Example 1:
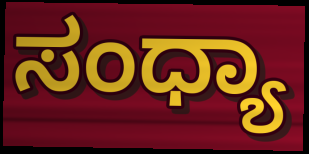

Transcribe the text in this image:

ಸಂಧ್ಯಾ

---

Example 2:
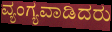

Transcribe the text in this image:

ವ್ಯಂಗ್ಯವಾಡಿದರು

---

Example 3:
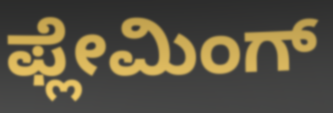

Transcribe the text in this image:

ಫ್ಲೇಮಿಂಗ್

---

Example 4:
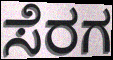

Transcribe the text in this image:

ಸೆರಗ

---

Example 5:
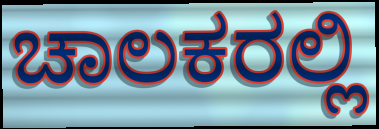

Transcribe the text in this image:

ಚಾಲಕರಲ್ಲಿ